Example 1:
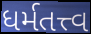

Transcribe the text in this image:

ધર્મતત્ત્વ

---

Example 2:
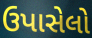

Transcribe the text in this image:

ઉપાસેલો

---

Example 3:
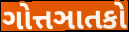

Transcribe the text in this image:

ગોત્તઞાતકો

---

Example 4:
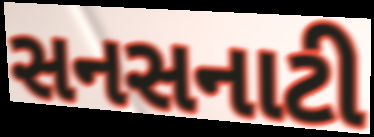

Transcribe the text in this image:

સનસનાટી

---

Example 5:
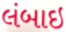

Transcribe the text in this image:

લંબાઇ